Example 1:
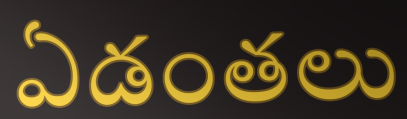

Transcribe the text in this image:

ఏడంతలు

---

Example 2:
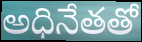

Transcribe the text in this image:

అధినేతతో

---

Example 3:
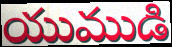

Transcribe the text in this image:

యుముడి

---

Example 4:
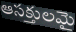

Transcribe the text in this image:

ఆసక్తులమై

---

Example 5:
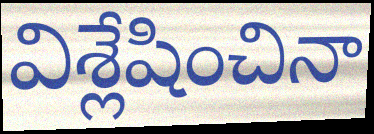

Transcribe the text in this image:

విశ్లేషించినా